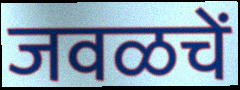
जवळचें